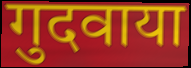
गुदवाया